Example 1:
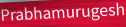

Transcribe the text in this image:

Prabhamurugesh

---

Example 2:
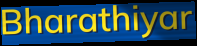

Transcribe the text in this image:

Bharathiyar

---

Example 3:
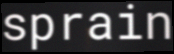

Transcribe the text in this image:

sprain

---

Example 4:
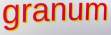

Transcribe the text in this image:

granum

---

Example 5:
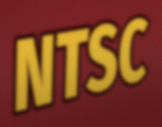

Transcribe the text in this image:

NTSC